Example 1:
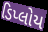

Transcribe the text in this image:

ડિપ્લોય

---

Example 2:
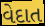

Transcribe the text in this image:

વેદાત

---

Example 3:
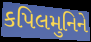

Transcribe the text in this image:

કપિલમુનિને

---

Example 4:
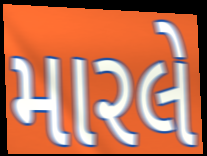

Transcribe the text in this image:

મારલે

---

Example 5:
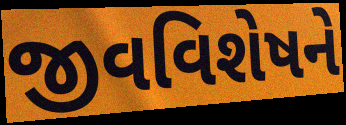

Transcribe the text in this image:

જીવવિશેષને